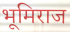
भूमिराज